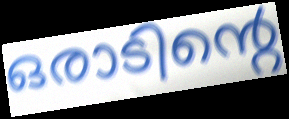
ഒരാടിന്റെ